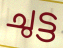
ചുട്ട